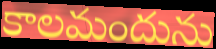
కాలమందును